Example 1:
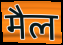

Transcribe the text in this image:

मैल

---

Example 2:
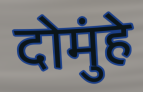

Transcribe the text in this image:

दोमुंहे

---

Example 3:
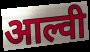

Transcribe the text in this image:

आल्वी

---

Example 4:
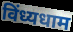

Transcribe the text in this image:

विंध्यधाम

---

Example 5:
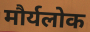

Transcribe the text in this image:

मौर्यलोक